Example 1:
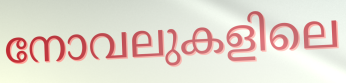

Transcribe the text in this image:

നോവലുകളിലെ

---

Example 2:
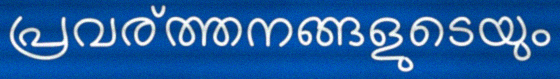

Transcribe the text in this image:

പ്രവര്ത്തനങ്ങളുടെയും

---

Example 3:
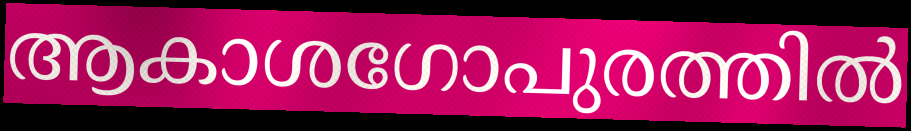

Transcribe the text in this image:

ആകാശഗോപുരത്തിൽ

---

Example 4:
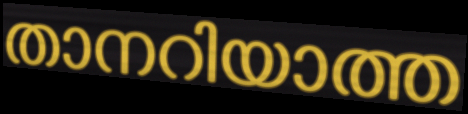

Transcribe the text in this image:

താനറിയാത്ത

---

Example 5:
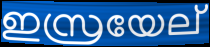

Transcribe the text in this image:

ഇസ്രയേല്